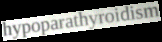
hypoparathyroidism